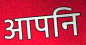
आपनि